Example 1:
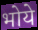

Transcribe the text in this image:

भोये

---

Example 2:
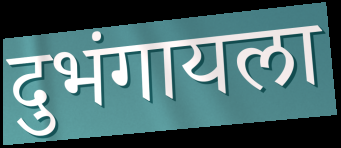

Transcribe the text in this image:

दुभंगायला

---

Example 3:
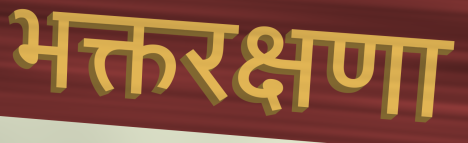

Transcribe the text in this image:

भक्तरक्षणा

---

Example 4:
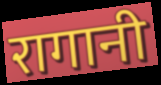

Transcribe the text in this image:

रागानी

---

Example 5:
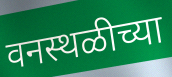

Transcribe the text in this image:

वनस्थळीच्या